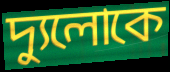
দ্যুলোকে